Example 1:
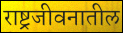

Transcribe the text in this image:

राष्ट्रजीवनातील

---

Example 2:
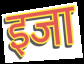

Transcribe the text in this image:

इजा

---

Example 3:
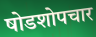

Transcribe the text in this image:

षोडशोपचार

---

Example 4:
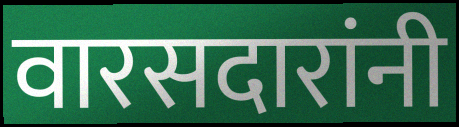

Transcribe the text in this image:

वारसदारांनी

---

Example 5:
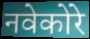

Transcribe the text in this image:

नवेकोरे